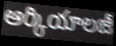
ఆర్కియాలజీ